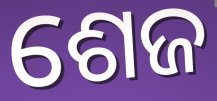
ଶେଜ